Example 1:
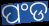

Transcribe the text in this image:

ପଂଡ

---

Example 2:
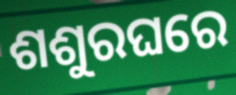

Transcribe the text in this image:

ଶଶୁରଘରେ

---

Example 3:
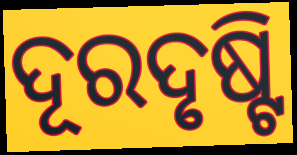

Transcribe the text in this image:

ଦୂରଦୃଷ୍ଟି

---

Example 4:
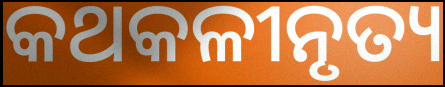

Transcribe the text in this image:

କଥକଳୀନୃତ୍ୟ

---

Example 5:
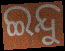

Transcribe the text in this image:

ଇନ୍ଦୁ